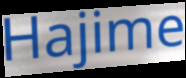
Hajime